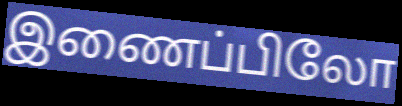
இணைப்பிலோ